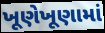
ખૂણેખૂણામાં